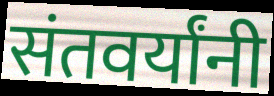
संतवर्यांनी